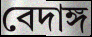
বেদাঙ্গ